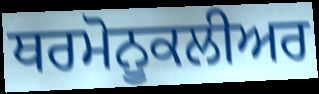
ਥਰਮੋਨੂਕਲੀਅਰ